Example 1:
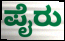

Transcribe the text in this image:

ಪೈರು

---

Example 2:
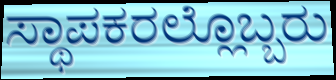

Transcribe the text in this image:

ಸ್ಥಾಪಕರಲ್ಲೊಬ್ಬರು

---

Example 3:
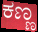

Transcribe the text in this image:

ಕಣ್ಣ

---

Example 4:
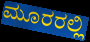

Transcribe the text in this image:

ಮೂರರಲ್ಲಿ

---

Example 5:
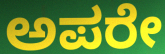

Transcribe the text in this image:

ಅಪರೇ